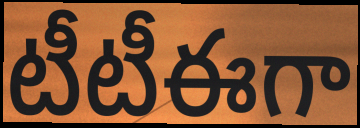
టీటీఈగా